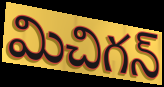
మిచిగన్